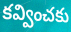
కవ్వించకు